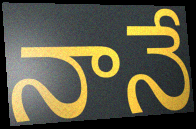
నానే